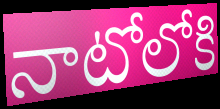
నాటోలోకి